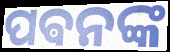
ପଵନଙ୍କ